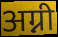
अग्नी